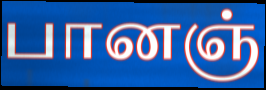
பானஞ்